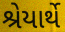
શ્રેયાર્થે